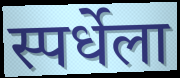
स्पर्धेला